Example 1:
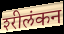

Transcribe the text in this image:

श्रीलंकन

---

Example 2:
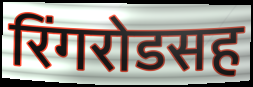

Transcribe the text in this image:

रिंगरोडसह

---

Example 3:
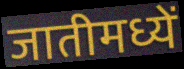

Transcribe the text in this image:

जातीमध्यें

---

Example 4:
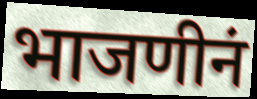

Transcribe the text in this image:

भाजणीनं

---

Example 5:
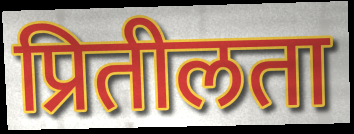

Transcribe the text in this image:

प्रितीलता